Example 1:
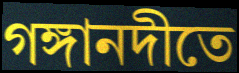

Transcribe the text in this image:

গঙ্গানদীতে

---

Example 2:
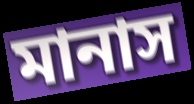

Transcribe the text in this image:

মানাস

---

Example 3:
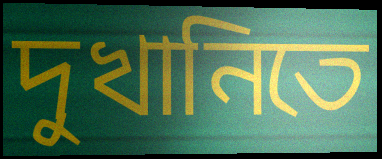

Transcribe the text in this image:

দুখানিতে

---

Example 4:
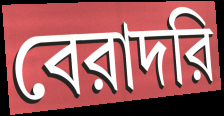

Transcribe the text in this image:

বেরাদরি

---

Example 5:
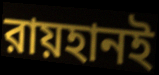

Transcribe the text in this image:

রায়হানই